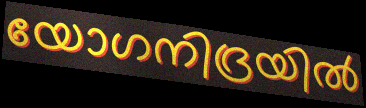
യോഗനിദ്രയിൽ